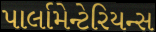
પાર્લામેન્ટેરિયન્સ